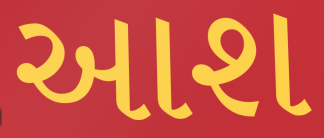
આશ